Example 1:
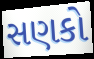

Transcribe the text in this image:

સણકો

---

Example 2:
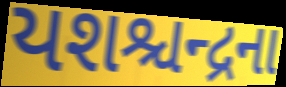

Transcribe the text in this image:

યશશ્ચન્દ્રના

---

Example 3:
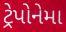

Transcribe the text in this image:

ટ્રેપોનેમા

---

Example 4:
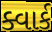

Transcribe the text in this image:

ક્વાર્ક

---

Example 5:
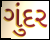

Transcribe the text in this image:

ગુંદર